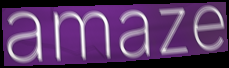
amaze